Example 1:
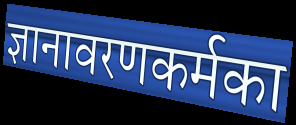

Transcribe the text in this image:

ज्ञानावरणकर्मका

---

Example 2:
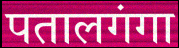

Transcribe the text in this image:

पतालगंगा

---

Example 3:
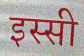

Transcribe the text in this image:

इस्सी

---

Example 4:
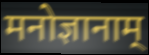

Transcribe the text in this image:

मनोज्ञानाम्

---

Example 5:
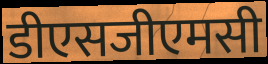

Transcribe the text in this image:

डीएसजीएमसी